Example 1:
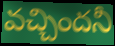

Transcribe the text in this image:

వచ్చిందనీ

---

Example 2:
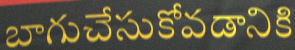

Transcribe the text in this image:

బాగుచేసుకోవడానికి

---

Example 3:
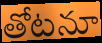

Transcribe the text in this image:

తోటనూ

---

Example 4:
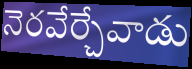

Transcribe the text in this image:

నెరవేర్చేవాడు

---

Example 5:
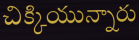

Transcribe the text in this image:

చిక్కియున్నారు